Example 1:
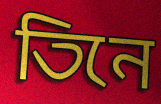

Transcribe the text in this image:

তিনে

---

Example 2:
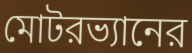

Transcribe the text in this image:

মোটরভ্যানের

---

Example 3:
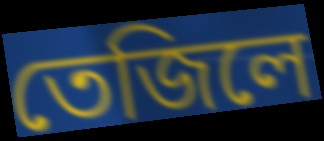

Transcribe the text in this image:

তেজিলে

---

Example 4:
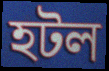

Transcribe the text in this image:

হটল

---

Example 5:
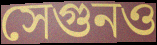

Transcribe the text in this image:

সেগুনও